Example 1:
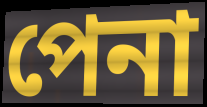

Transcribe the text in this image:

পেনা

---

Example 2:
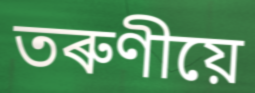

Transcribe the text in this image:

তৰুণীয়ে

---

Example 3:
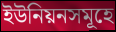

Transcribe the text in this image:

ইউনিয়নসমূহে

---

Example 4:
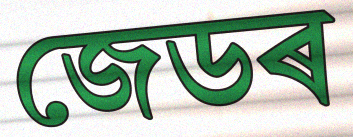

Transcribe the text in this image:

জেডৰ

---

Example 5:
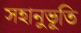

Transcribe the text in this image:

সহানুভূতি